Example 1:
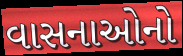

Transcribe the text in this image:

વાસનાઓનો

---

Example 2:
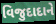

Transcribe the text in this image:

વિજુદાદાને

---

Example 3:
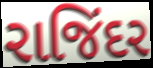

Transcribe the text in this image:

રાજિંદર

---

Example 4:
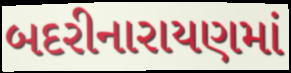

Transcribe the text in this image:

બદરીનારાયણમાં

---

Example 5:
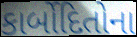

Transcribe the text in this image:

કાર્બોદિતોના